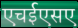
एचईएसए